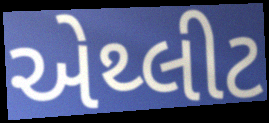
એથ્લીટ